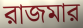
রাজমার